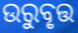
ଉରୁବୃତ୍ତ